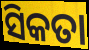
ସିକତା